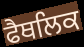
ਫੈਥਲਿਕ